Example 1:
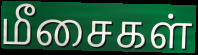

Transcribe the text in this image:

மீசைகள்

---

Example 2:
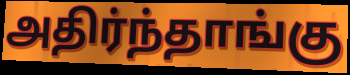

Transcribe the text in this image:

அதிர்ந்தாங்கு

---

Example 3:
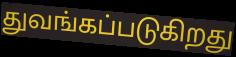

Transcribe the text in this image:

துவங்கப்படுகிறது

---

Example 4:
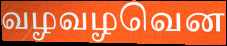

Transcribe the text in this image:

வழவழவென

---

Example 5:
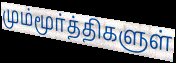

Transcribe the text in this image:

மும்மூர்த்திகளுள்